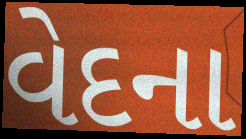
વેદના